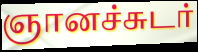
ஞானச்சுடர்